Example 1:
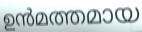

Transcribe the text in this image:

ഉൻമത്തമായ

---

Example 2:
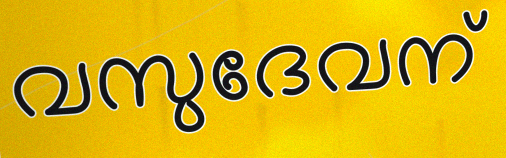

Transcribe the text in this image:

വസുദേവന്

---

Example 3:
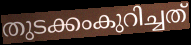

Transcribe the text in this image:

തുടക്കംകുറിച്ചത്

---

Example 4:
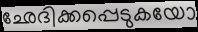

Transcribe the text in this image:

ഛേദിക്കപ്പെടുകയോ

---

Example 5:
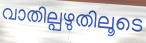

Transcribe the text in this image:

വാതില്പഴുതിലൂടെ